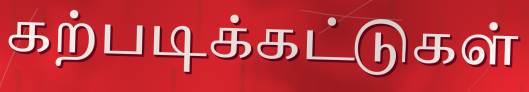
கற்படிக்கட்டுகள்